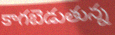
కాగబెడుతున్న